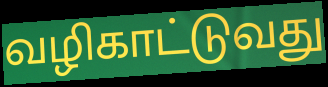
வழிகாட்டுவது